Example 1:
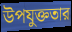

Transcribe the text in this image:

উপযুক্ততার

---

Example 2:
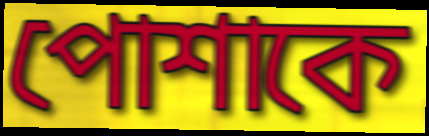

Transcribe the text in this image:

পোশাকে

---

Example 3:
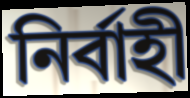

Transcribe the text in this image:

নির্বাহী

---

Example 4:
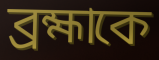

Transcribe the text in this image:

ব্রহ্মাকে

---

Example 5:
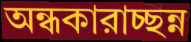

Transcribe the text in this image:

অন্ধকারাচ্ছন্ন